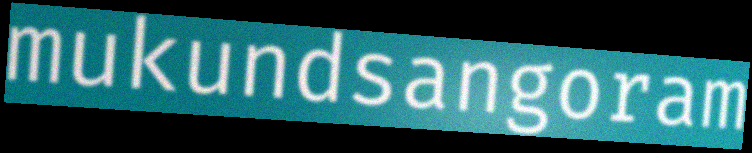
mukundsangoram